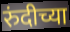
रुंदीच्या